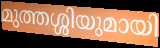
മുത്തശ്ശിയുമായി